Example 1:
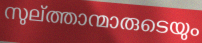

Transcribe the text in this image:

സുല്ത്താന്മാരുടെയും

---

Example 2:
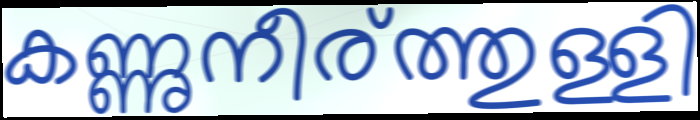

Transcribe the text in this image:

കണ്ണുനീര്ത്തുള്ളി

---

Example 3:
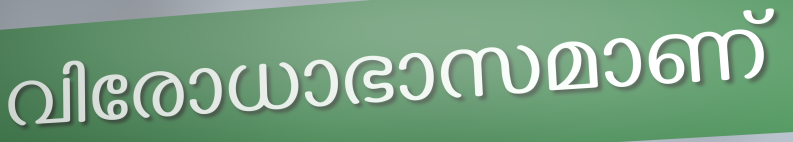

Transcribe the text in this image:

വിരോധാഭാസമാണ്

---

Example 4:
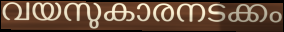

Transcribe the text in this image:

വയസുകാരനടക്കം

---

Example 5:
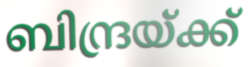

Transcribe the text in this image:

ബിന്ദ്രയ്ക്ക്